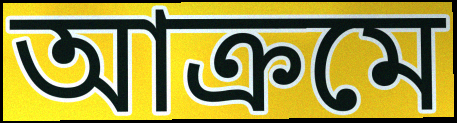
আক্রমে